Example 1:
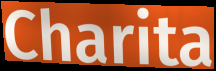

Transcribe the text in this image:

Charita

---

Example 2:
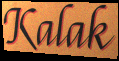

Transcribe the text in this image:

Kalak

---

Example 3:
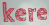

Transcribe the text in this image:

kere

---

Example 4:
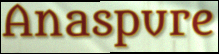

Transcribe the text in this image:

Anaspure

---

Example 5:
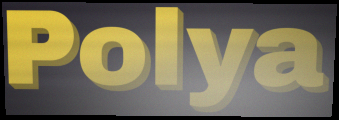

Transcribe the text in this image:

Polya